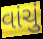
વાંચું